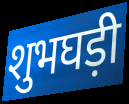
शुभघड़ी